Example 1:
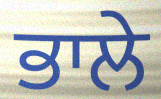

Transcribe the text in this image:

ਭਾਲੇ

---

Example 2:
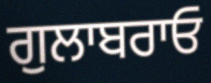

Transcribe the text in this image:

ਗੁਲਾਬਰਾਓ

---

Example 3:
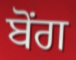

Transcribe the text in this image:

ਬੋਂਗ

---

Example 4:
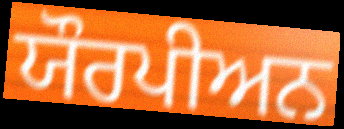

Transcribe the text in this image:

ਯੌਰਪੀਅਨ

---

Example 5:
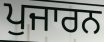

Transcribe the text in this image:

ਪੁਜਾਰਨ